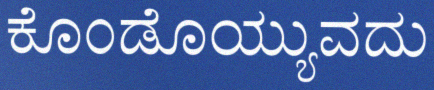
ಕೊಂಡೊಯ್ಯುವದು